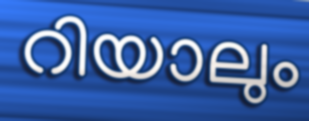
റിയാലും